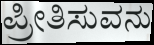
ಪ್ರೀತಿಸುವನು